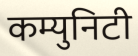
कम्युनिटी